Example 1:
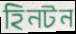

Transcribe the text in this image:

হিনটন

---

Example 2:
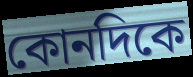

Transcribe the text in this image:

কোনদিকে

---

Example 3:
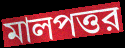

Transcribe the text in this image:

মালপত্তর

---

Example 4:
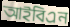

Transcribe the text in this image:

আইবিএন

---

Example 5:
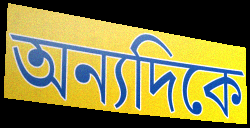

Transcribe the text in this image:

অন্যদিকে